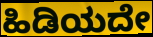
ಹಿಡಿಯದೇ